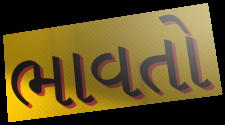
ભાવતો